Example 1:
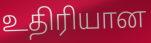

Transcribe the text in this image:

உதிரியான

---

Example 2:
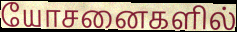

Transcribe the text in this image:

யோசனைகளில்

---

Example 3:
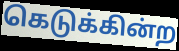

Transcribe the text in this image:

கெடுக்கின்ற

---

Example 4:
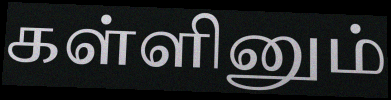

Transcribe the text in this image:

கள்ளினும்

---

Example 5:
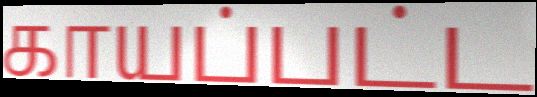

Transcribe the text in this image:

காயப்பட்ட